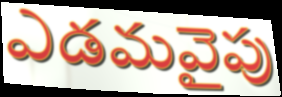
ఎడమవైపు